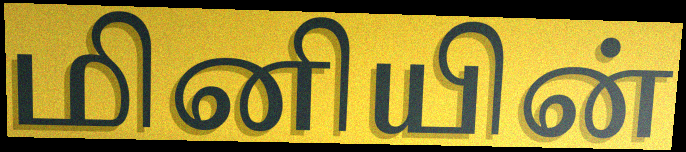
மினியின்